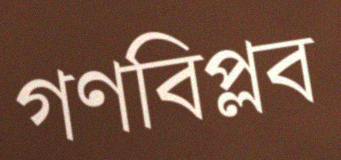
গণবিপ্লব